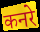
कनरे